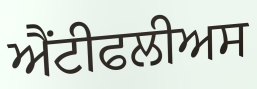
ਐਂਟੀਫਲੀਅਸ